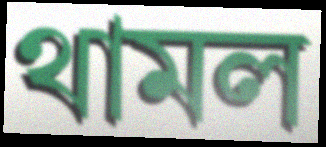
থামল